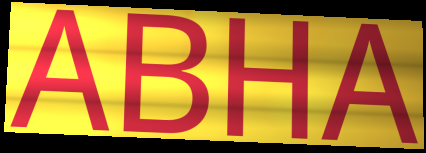
ABHA